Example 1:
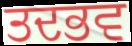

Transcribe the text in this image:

ਤਦਭਵ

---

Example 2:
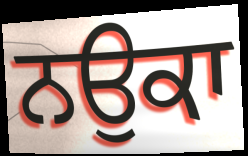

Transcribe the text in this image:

ਨਉਕਾ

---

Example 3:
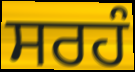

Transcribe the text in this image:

ਸਰਹੰ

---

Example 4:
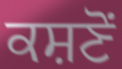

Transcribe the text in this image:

ਕਸ਼ਣੋਂ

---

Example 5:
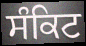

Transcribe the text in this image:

ਸੰਕਿਟ